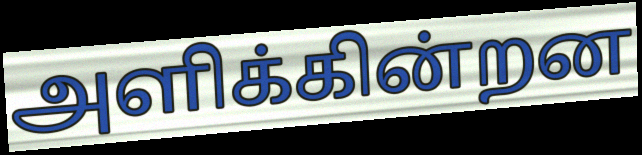
அளிக்கின்றன